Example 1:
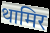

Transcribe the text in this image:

थामिर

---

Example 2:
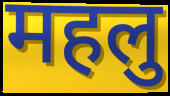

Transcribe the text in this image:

महलु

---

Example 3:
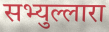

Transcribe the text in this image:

सभ्युल्लारा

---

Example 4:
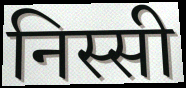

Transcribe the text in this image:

निस्सी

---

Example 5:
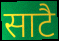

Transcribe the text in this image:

साटै